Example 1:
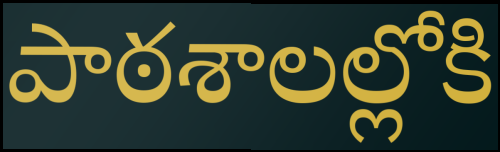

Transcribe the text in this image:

పాఠశాలల్లోకి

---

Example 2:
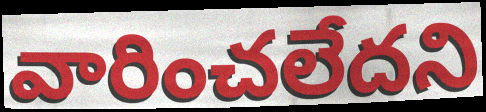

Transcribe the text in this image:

వారించలేదని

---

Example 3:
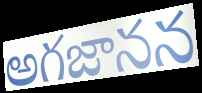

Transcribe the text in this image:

అగజానన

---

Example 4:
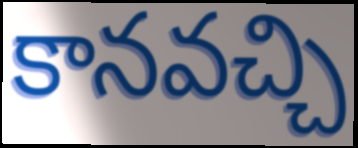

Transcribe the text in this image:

కానవచ్చి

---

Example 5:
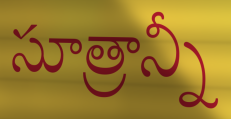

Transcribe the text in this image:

సూత్రాన్నీ